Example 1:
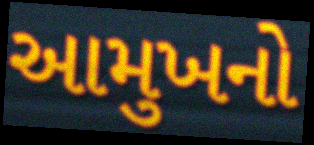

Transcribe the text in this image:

આમુખનો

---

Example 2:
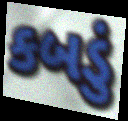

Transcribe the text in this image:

કબડું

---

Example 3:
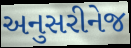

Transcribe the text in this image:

અનુસરીનેજ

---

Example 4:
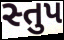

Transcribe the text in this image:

સ્તુપ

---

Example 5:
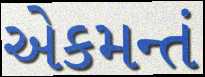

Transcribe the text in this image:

એકમન્તં